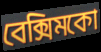
বেক্সিমকো